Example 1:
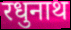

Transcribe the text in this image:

रधुनाथ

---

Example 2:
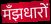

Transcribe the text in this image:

मँझधारों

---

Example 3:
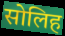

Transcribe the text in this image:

सोलिह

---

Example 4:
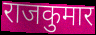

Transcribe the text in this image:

राजकुमार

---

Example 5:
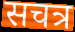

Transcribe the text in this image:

सचत्र